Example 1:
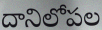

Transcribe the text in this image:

దానిలోపల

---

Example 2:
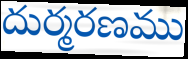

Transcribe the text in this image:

దుర్మరణము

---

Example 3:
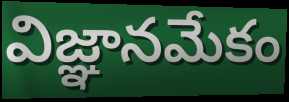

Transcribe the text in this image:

విజ్ఞానమేకం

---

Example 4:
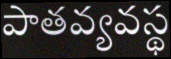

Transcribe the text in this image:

పాతవ్యవస్థ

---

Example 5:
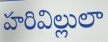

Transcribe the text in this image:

హరివిల్లులా